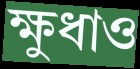
ক্ষুধাও